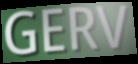
GERV